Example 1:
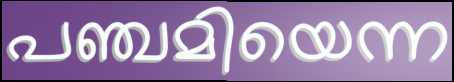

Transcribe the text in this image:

പഞ്ചമിയെന്ന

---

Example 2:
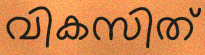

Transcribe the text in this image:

വികസിത്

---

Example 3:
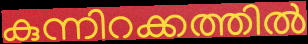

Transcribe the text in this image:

കുന്നിറക്കത്തിൽ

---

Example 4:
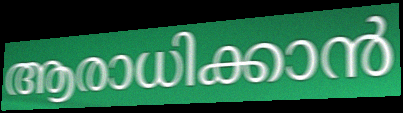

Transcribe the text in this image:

ആരാധിക്കാൻ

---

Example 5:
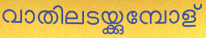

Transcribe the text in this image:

വാതിലടയ്ക്കുമ്പോള്